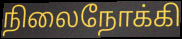
நிலைநோக்கி